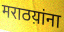
मराठय़ांना